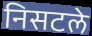
निसटले